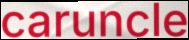
caruncle